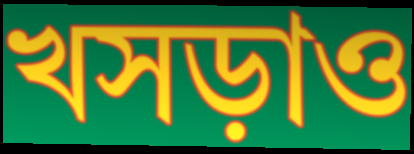
খসড়াও